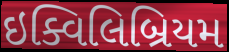
ઇક્વિલિબ્રિયમ